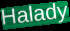
Halady